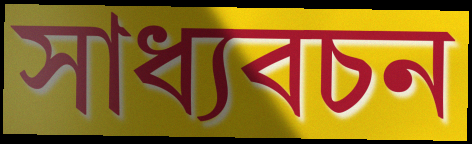
সাধ্যবচন